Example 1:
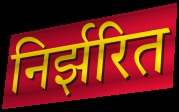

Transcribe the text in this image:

निर्झरित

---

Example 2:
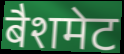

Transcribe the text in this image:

बैशमेट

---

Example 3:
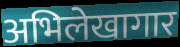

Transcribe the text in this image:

अभिलेखागार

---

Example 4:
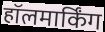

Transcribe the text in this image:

हॉलमार्किंग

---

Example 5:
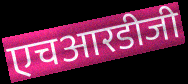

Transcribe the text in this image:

एचआरडीजी